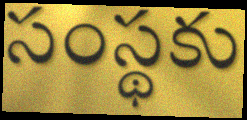
సంస్థకు